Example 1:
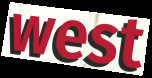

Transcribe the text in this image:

west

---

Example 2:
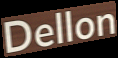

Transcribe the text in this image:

Dellon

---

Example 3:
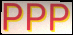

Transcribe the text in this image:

PPP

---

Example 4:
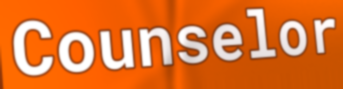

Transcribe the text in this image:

Counselor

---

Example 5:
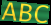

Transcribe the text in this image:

ABC